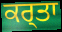
ਕਰ੍ਤਾ